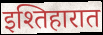
इश्तिहारात